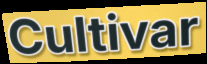
Cultivar